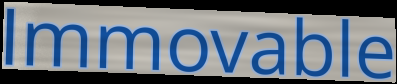
Immovable